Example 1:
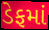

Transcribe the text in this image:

ડેફમાં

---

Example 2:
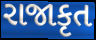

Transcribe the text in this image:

રાજાકૃત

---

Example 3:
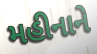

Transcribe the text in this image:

મહીનાને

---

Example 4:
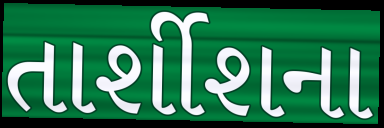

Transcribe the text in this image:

તાર્શીશના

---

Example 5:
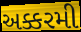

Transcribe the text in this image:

અક્કરમી